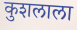
कुशलाला